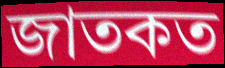
জাতকত